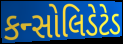
કન્સોલિડેટેડ